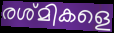
രശ്മികളെ